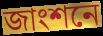
জাংশনে